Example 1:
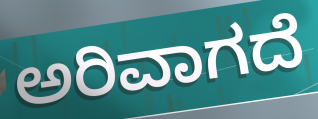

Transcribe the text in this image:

ಅರಿವಾಗದೆ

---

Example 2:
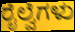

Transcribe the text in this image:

ರೈಲ್ವೆಗಳು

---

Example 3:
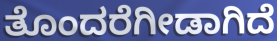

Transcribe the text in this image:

ತೊಂದರೆಗೀಡಾಗಿದೆ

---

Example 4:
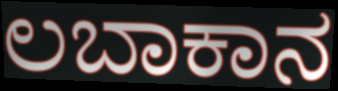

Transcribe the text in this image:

ಲಬಾಕಾನ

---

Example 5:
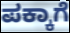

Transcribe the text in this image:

ಪಕ್ಕಾಗೆ